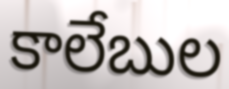
కాలేబుల